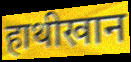
हाथीखान